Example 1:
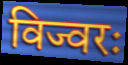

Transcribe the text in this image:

विज्वरः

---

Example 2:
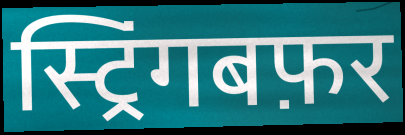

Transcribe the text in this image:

स्ट्रिंगबफ़र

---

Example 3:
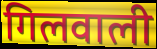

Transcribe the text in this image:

गिलवाली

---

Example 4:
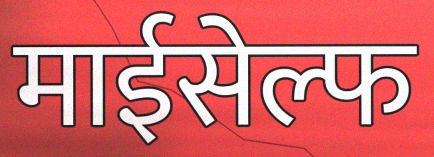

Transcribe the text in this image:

माईसेल्फ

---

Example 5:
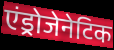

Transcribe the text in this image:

एंड्रोजेनेटिक